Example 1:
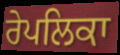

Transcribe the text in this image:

ਰੇਪਲਿਕਾ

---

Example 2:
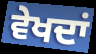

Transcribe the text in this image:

ਵੇਖਦਾਂ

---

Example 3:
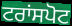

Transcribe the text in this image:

ਟਰਾਂਸਪੋਟ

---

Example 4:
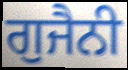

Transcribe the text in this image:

ਗੁਜੈਨੀ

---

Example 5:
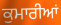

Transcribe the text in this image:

ਕੁਮਾਰੀਆਂ